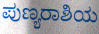
ಪುಣ್ಯರಾಶಿಯ